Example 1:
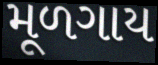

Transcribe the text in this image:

મૂળગાય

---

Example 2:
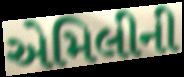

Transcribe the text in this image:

એમિલીની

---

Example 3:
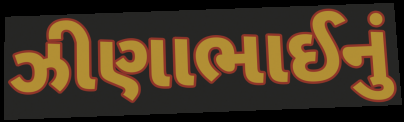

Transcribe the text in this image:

ઝીણાભાઈનું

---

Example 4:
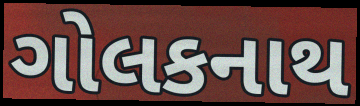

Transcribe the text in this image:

ગોલકનાથ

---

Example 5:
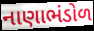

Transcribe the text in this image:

નાણાભંડોળ